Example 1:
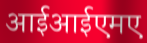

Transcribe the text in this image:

आईआईएमए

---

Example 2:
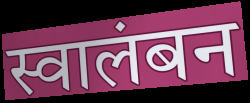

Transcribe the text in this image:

स्वालंबन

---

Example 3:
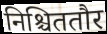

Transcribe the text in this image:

निश्चिततौर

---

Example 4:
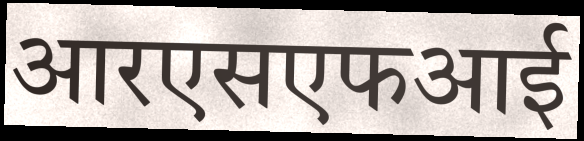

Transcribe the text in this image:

आरएसएफआई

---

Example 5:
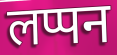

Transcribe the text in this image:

लप्पन